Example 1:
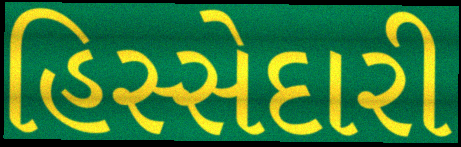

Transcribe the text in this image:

હિસ્સેદારી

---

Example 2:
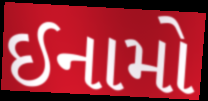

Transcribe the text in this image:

ઈનામો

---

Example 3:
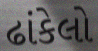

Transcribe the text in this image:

ઢાંકેલો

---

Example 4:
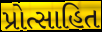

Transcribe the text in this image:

પ્રોત્સાહિત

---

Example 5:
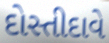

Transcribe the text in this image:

દોસ્તીદાવે